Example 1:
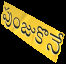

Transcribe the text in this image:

పుంజుకొనే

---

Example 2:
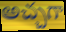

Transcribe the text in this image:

అచ్చగా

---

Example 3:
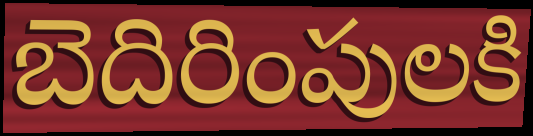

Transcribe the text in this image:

బెదిరింపులకి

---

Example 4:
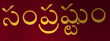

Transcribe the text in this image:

సంప్రష్టుం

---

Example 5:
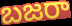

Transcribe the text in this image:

బజరా